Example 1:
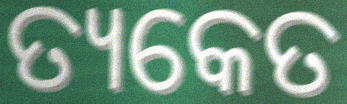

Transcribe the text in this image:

ତ୍ୟକେତ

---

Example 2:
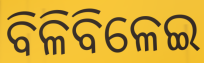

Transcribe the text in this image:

ବିଳିବିଳେଇ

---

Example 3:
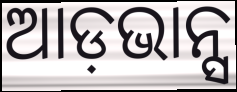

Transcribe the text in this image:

ଆଡ଼ଭାନ୍ସ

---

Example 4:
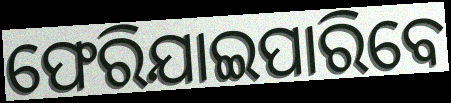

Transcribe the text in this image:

ଫେରିଯାଇପାରିବେ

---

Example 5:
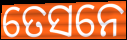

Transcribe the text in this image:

ତେସନେ